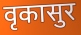
वृकासुर